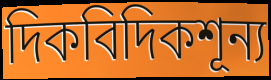
দিকবিদিকশূন্য